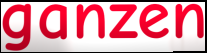
ganzen